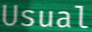
Usual